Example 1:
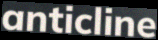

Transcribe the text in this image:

anticline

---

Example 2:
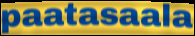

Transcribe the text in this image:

paatasaala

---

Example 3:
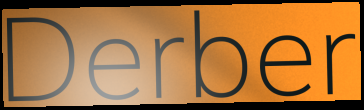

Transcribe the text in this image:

Derber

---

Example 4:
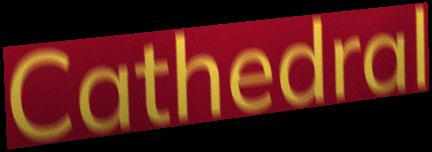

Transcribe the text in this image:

Cathedral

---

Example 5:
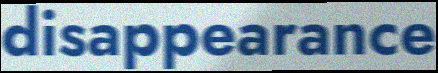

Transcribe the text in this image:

disappearance